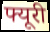
फ्यूरी